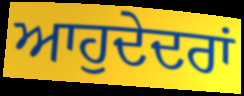
ਆਹੁਦੇਦਰਾਂ